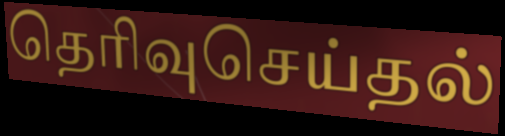
தெரிவுசெய்தல்